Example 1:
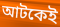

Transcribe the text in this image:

আটকেই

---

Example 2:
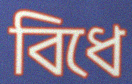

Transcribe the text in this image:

বিধে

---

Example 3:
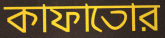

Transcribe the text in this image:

কাফাতোর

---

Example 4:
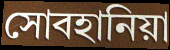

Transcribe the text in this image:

সোবহানিয়া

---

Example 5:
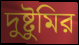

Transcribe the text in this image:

দুষ্টুমির